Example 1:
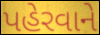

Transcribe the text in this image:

પહેરવાને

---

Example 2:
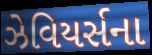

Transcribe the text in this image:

ઝેવિયર્સના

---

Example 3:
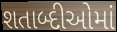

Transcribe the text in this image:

શતાબ્દીઓમાં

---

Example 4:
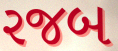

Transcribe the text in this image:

રજબ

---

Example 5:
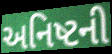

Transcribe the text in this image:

અનિષ્ટની